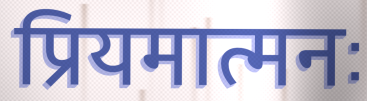
प्रियमात्मनः